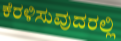
ಕೆರಳಿಸುವುದರಲ್ಲಿ